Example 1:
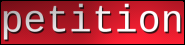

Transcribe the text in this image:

petition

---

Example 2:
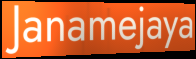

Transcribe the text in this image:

Janamejaya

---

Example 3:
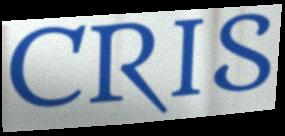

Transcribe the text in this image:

CRIS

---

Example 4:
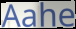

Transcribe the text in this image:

Aahe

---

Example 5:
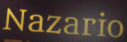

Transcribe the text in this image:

Nazario